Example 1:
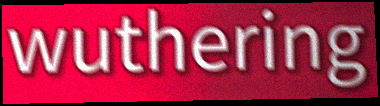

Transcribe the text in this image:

wuthering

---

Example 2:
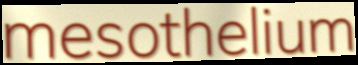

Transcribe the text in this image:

mesothelium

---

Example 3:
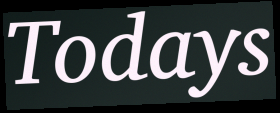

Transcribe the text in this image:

Todays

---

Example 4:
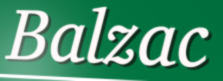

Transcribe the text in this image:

Balzac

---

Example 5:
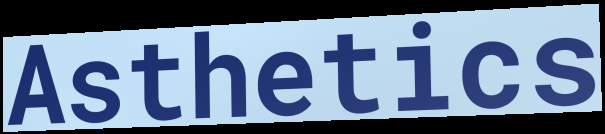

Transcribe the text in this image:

Asthetics